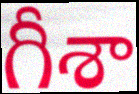
గీశా